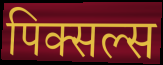
पिक्सल्स